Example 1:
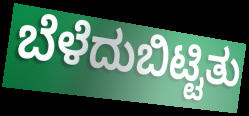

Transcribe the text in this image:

ಬೆಳೆದುಬಿಟ್ಟಿತು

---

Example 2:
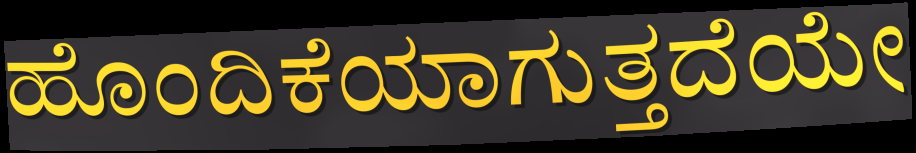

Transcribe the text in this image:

ಹೊಂದಿಕೆಯಾಗುತ್ತದೆಯೇ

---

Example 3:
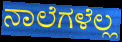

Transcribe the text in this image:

ನಾಲೆಗಳೆಲ್ಲ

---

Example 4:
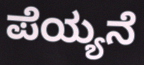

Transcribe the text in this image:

ಪೆಯ್ಯನೆ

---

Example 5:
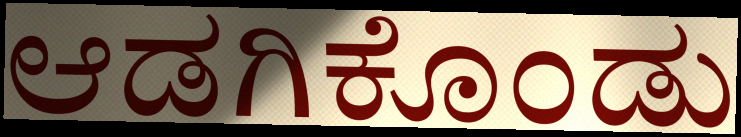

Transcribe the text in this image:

ಆಡಗಿಕೊಂಡು